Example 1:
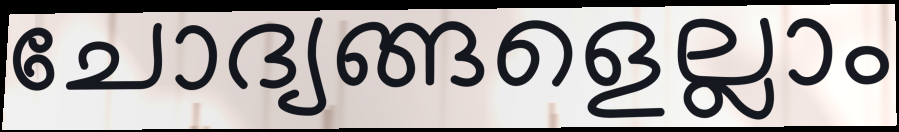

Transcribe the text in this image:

ചോദ്യങ്ങളെല്ലാം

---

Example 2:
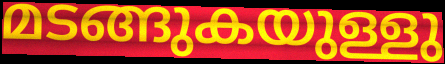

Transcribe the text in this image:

മടങ്ങുകയുള്ളു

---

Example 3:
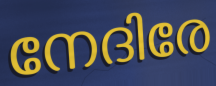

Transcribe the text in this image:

നേദിരേ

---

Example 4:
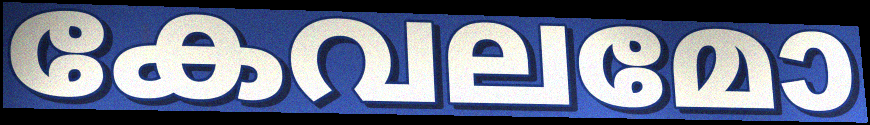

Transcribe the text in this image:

കേവലമോ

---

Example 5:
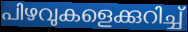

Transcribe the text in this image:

പിഴവുകളെക്കുറിച്ച്